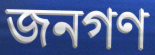
জনগণ